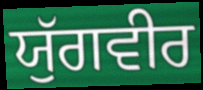
ਯੁੱਗਵੀਰ